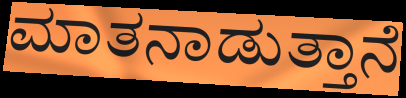
ಮಾತನಾಡುತ್ತಾನೆ